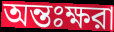
অন্তঃক্ষরা